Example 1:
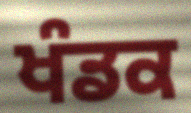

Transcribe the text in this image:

ਖੰਡਕ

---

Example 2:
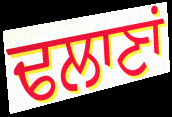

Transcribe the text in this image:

ਢਲਾਣਾਂ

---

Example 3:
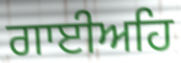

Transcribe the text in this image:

ਗਾਈਅਹਿ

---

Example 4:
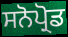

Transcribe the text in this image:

ਸਨੋਪ੍ਰੋਡ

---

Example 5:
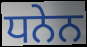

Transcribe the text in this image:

ਧਨੇਨ